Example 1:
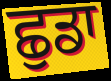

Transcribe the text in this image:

ਛੁਡਾ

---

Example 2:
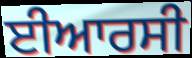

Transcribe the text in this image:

ਈਆਰਸੀ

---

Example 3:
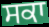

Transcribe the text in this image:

ਸਕਾ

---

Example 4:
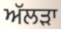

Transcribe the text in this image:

ਅੱਲੜਾ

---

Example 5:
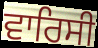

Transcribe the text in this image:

ਵਾਰਿਸੀ